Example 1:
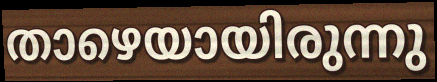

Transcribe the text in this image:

താഴെയായിരുന്നു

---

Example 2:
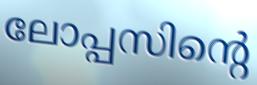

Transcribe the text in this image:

ലോപ്പസിന്റെ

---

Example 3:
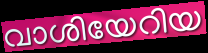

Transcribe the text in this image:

വാശിയേറിയ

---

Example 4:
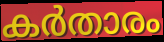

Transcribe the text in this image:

കർതാരം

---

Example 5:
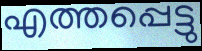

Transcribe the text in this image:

എത്തപ്പെട്ടു